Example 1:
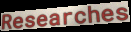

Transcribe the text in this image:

Researches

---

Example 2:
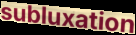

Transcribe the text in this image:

subluxation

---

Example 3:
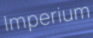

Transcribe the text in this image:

Imperium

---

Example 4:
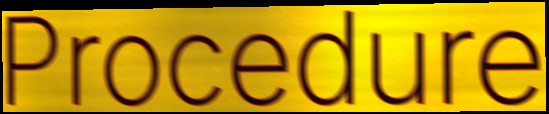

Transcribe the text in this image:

Procedure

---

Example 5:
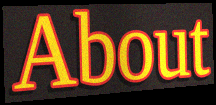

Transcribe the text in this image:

About